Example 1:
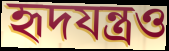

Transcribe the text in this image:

হৃদযন্ত্রও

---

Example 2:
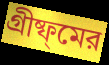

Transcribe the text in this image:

গ্রীষ্ফ্মের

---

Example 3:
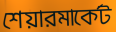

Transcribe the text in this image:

শেয়ারমার্কেট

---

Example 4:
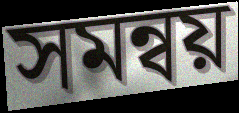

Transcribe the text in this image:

সমন্বয়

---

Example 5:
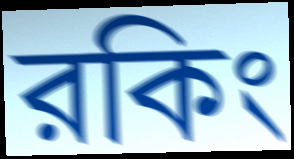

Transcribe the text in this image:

রকিং